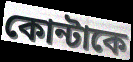
কোন্টাকে